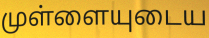
முள்ளையுடைய